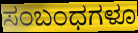
ಸಂಬಂಧಗಳೂ